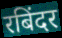
रबिंदर